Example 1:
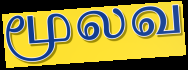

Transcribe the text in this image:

மூலவ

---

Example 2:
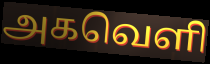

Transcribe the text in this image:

அகவெளி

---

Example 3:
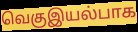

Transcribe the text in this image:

வெகுஇயல்பாக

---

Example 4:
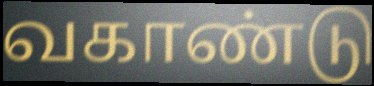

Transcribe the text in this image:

வகாண்டு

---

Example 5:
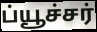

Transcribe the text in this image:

ப்யூச்சர்